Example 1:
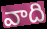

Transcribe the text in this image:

వాది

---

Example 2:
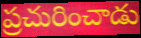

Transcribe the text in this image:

ప్రచురించాడు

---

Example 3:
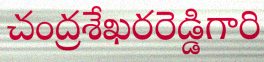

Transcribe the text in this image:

చంద్రశేఖరరెడ్డిగారి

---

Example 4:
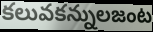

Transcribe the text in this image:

కలువకన్నులజంట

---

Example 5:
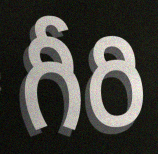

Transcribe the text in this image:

గీరి